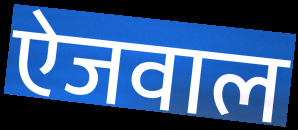
ऐजवाल